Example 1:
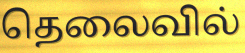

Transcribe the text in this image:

தெலைவில்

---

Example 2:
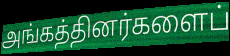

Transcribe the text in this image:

அங்கத்தினர்களைப்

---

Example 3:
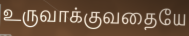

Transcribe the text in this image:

உருவாக்குவதையே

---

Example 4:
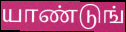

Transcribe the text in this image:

யாண்டுங்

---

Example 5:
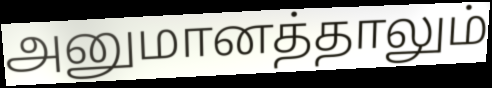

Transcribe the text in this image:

அனுமானத்தாலும்